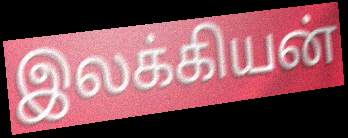
இலக்கியன்